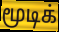
மூடிக்